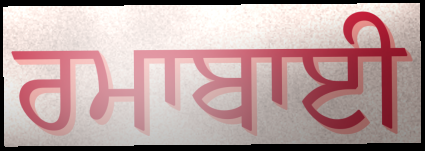
ਰਮਾਬਾਈ